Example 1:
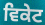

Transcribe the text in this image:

ਵਿਕੇਟ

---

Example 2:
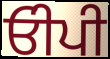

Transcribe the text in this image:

ਓੀਪੀ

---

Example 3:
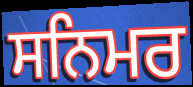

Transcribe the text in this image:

ਸਨਿਮਰ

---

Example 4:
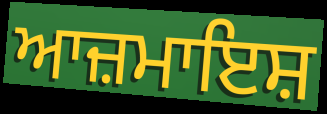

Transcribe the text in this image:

ਆਜ਼ਮਾਇਸ਼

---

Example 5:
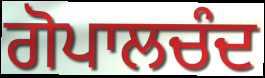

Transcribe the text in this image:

ਗੋਪਾਲਚੰਦ